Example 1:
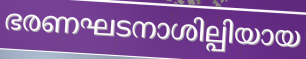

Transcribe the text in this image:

ഭരണഘടനാശില്പിയായ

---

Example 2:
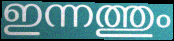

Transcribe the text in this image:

ഇന്നത്തും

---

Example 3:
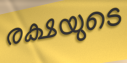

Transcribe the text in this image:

രക്ഷയുടെ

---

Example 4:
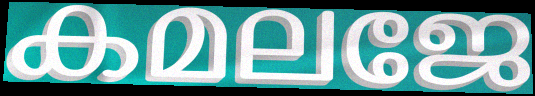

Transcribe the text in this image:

കമലജേ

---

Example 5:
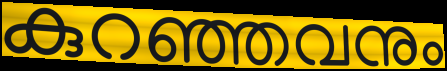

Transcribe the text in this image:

കുറഞ്ഞവനും